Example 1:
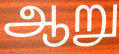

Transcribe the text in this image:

ஆறு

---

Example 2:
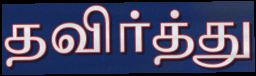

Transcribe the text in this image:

தவிர்த்து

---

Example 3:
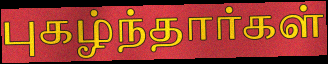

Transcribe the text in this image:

புகழ்ந்தார்கள்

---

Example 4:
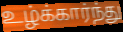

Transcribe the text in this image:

உழ்க்கார்ந்து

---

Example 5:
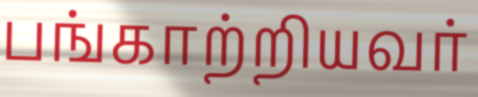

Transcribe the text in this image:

பங்காற்றியவர்